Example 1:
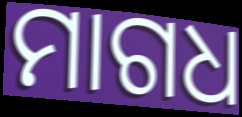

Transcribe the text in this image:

ମାଗଧ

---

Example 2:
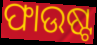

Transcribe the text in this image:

ଫାଉଷ୍ଟ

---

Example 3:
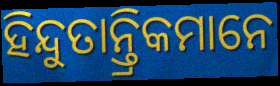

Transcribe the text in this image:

ହିନ୍ଦୁତାନ୍ତ୍ରିକମାନେ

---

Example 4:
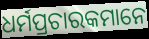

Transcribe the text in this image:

ଧର୍ମପ୍ରଚାରକମାନେ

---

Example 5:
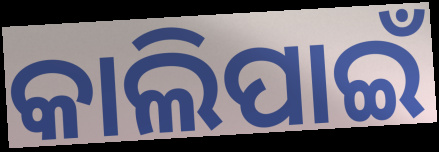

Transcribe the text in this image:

କାଲିପାଇଁ